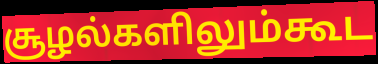
சூழல்களிலும்கூட